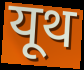
यूथ